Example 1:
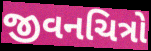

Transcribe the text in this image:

જીવનચિત્રો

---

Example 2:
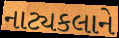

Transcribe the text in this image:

નાટ્યકલાને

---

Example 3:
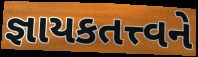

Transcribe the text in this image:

જ્ઞાયકતત્ત્વને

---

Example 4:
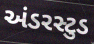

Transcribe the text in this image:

અંડરસ્ટુડ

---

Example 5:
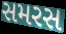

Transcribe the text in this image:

સમરસ